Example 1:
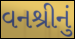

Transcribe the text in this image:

વનશ્રીનું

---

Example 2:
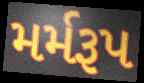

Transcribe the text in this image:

મર્મરૂપ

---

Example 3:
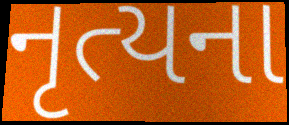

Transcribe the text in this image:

નૃત્યના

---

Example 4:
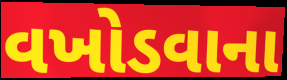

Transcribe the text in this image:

વખોડવાના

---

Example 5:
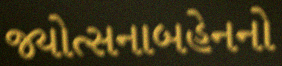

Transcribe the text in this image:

જ્યોત્સનાબહેનનો